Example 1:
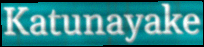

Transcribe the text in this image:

Katunayake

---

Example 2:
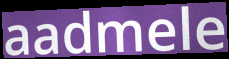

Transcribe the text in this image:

aadmele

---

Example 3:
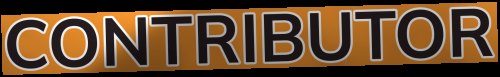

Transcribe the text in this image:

CONTRIBUTOR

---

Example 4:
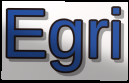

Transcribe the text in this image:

Egri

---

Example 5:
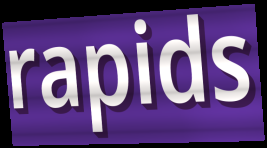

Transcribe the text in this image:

rapids